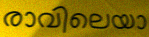
രാവിലെയാ